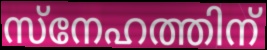
സ്നേഹത്തിന്